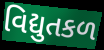
વિદ્યુતકળ